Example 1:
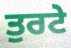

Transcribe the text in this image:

ਤੁਰਟੇ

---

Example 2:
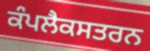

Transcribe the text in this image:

ਕੰਪਲੈਕਸਤਰਨ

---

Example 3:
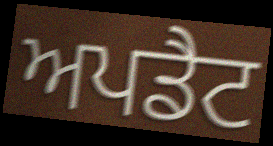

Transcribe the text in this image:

ਅਪਡੈਟ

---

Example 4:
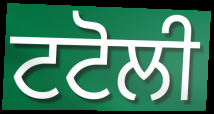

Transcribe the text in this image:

ਟਟੋਲੀ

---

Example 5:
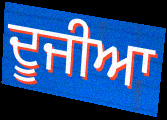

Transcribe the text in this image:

ਦੂਜੀਆ